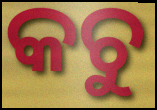
କଚୁ